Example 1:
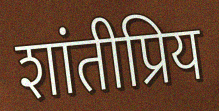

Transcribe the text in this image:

शांतीप्रिय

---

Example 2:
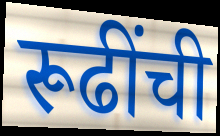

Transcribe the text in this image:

रूढींची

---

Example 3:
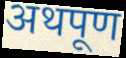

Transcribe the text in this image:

अथपूण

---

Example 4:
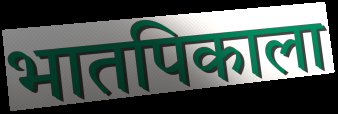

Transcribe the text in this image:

भातपिकाला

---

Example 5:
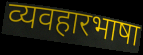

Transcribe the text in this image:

व्यवहारभाषा